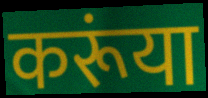
करूंया